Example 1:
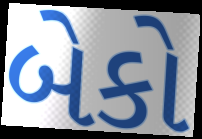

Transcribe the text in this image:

બેકો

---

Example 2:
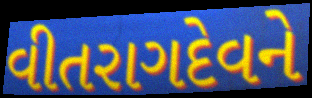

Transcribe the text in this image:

વીતરાગદેવને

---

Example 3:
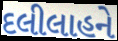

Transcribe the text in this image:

દલીલાહને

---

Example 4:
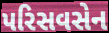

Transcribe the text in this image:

પરિસવસેન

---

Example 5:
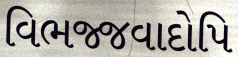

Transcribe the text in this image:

વિભજ્જવાદોપિ